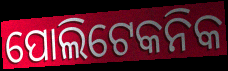
ପୋଲିଟେକନିକ